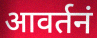
आवर्तनं